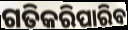
ଗତିକରିପାରିବ